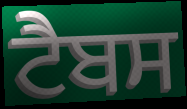
ਟੈਬਸ